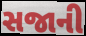
સજાની